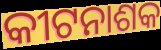
କୀଟନାଶକ